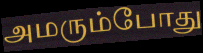
அமரும்போது